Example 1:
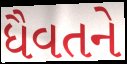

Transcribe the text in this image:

ધૈવતને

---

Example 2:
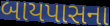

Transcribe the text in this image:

બાયપાસના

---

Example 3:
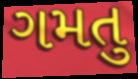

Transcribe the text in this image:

ગમતુ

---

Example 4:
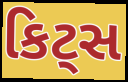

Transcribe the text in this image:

કિટ્સ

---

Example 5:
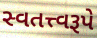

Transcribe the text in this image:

સ્વતત્ત્વરૂપે